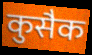
कुसैक